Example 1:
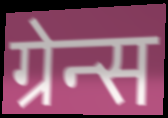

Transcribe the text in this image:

ग्रेन्स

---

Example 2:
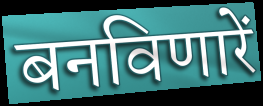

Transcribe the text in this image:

बनविणारें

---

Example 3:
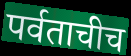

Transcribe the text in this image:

पर्वताचीच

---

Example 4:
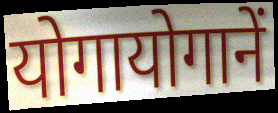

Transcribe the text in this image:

योगायोगानें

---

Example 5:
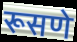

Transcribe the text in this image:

रूसणे